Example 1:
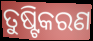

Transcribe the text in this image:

ତୁଷ୍ଟିକରଣ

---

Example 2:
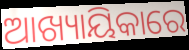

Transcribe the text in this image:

ଆଖ୍ୟାୟିକାରେ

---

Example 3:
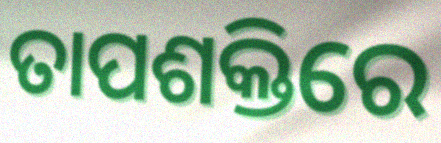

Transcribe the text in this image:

ତାପଶକ୍ତିରେ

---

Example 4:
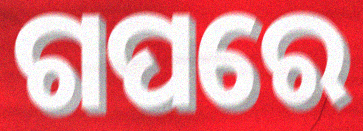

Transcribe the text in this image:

ଗପରେ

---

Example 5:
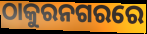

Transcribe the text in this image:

ଠାକୁରନଗରରେ